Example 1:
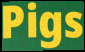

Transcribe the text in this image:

Pigs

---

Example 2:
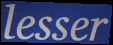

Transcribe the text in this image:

lesser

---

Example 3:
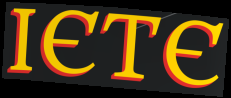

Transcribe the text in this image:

IETE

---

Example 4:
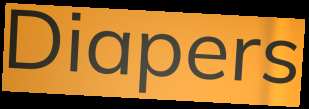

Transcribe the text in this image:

Diapers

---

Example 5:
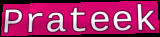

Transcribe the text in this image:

Prateek